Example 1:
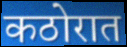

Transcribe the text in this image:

कठोरात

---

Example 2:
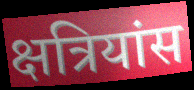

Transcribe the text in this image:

क्षत्रियांस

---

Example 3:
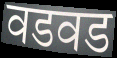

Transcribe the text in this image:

वडवड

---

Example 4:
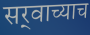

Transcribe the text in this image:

सर्वाच्याच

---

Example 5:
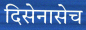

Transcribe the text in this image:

दिसेनासेच